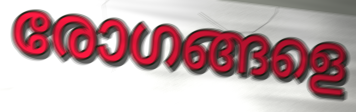
രോഗങ്ങളെ